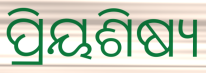
ପ୍ରିୟଶିଷ୍ୟ